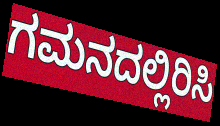
ಗಮನದಲ್ಲಿರಿಸಿ